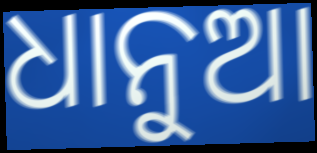
ଧାନୁଆ